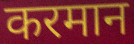
करमान